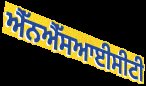
ਐੱਨਐੱਸਆਈਸੀਟੀ